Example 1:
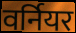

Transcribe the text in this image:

वर्नियर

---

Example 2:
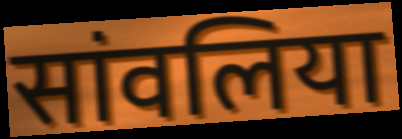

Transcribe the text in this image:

सांवलिया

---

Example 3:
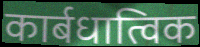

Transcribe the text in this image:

कार्बधात्विक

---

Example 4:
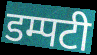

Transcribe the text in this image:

डम्पटी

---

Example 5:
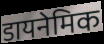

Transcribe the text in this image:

डायनेमिक